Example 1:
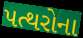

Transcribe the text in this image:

પત્થરોના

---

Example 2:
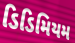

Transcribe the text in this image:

ડિડિમિયમ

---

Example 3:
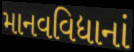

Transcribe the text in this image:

માનવવિદ્યાનાં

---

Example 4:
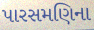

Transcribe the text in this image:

પારસમણિના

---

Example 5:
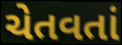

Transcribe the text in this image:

ચેતવતાં